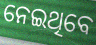
ନେଇଥିବେ